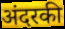
अंदरकी